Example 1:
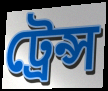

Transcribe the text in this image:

ট্রেন্স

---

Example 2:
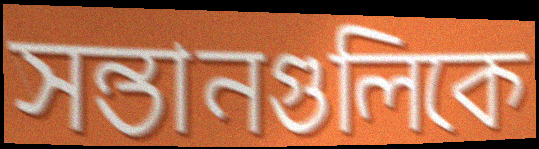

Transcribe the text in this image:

সন্তানগুলিকে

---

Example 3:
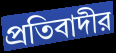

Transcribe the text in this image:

প্রতিবাদীর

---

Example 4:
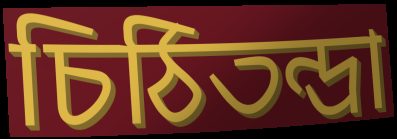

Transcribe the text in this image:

চিঠিতন্দ্রা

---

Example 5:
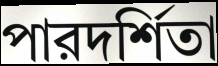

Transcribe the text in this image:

পারদর্শিতা